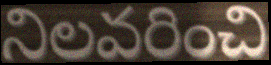
నిలవరించి